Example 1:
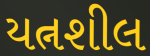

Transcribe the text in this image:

યત્નશીલ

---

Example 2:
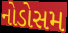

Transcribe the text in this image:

નોડોસમ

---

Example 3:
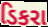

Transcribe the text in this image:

ડિકરા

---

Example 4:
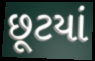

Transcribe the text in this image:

છૂટયાં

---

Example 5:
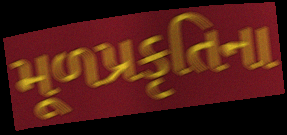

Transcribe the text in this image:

મૂળપ્રકૃતિના